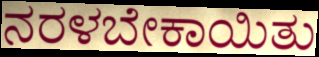
ನರಳಬೇಕಾಯಿತು